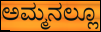
ಅಮ್ಮನಲ್ಲೂ